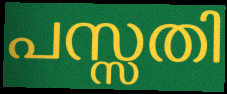
പസ്സതി